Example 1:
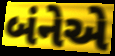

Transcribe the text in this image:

બંનેએ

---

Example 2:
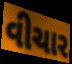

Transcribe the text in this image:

વીચાર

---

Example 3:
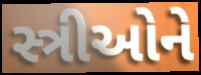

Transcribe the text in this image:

સ્ત્રીઓને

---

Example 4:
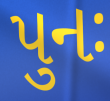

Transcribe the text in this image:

પુનઃ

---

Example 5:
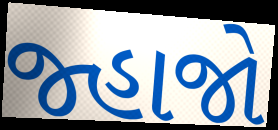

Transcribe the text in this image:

જ્હાજો